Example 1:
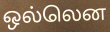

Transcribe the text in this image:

ஒல்லென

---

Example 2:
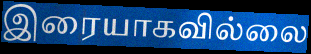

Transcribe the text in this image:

இரையாகவில்லை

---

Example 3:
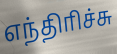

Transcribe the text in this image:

எந்திரிச்சு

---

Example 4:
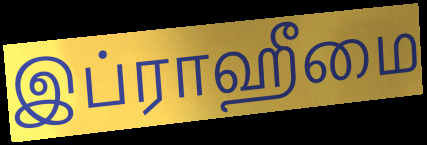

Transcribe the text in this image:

இப்ராஹீமை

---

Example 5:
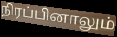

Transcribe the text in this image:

நிரப்பினாலும்